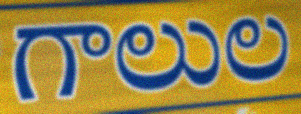
గాలుల